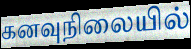
கனவுநிலையில்